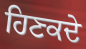
ਹਿਣਕਦੇ